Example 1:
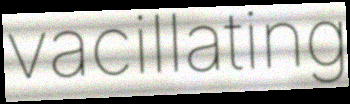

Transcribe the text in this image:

vacillating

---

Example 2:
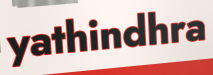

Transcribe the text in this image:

yathindhra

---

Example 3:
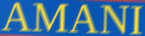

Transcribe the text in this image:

AMANI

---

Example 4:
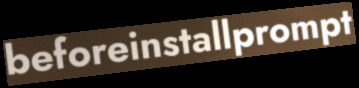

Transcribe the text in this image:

beforeinstallprompt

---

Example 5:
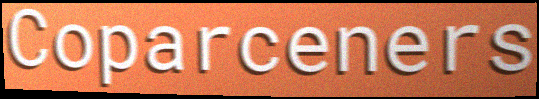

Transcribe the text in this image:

Coparceners